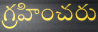
గ్రహించరు